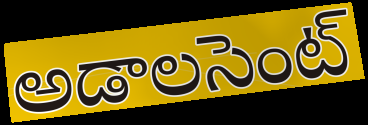
అడాలసెంట్